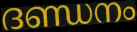
ദണ്ഡനം